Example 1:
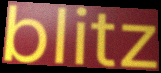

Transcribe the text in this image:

blitz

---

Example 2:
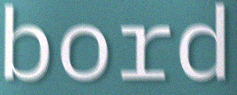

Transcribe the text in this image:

bord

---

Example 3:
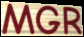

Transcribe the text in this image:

MGR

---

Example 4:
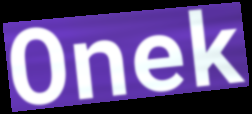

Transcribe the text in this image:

Onek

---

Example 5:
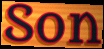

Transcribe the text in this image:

Son